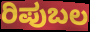
ರಿಪುಬಲ